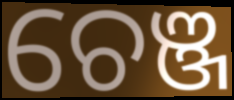
ଚେଞ୍ଜ